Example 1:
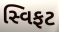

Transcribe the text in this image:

સ્વિફટ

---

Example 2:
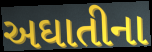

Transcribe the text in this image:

અઘાતીના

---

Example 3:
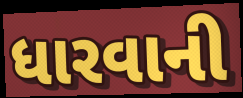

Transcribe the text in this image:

ધારવાની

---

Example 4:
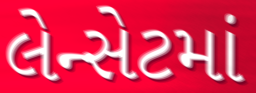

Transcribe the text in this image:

લેન્સેટમાં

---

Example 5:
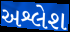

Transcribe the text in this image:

અશ્લેશ